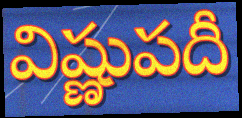
విష్ణుపదీ